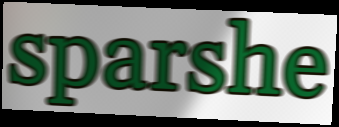
sparshe